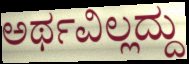
ಅರ್ಥವಿಲ್ಲದ್ದು